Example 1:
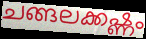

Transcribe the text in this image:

ചങ്ങലക്കഷ്ണം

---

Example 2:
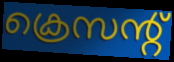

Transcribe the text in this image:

ക്രെസന്റ്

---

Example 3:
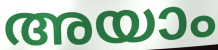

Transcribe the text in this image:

അയാം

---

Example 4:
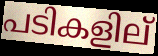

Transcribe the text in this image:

പടികളില്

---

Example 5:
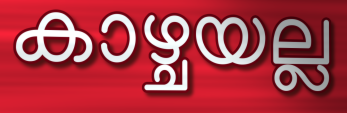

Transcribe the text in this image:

കാഴ്ചയല്ല